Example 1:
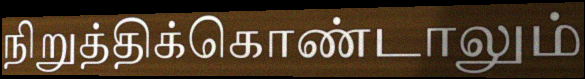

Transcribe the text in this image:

நிறுத்திக்கொண்டாலும்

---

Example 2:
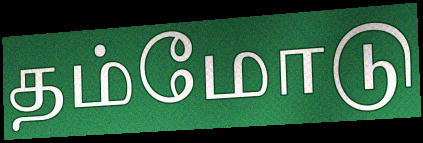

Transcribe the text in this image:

தம்மோடு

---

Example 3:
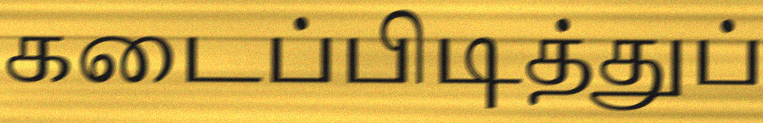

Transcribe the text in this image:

கடைப்பிடித்துப்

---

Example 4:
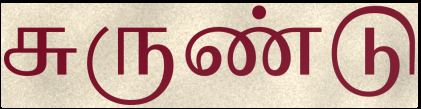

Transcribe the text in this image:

சுருண்டு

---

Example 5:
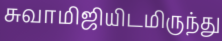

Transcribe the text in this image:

சுவாமிஜியிடமிருந்து